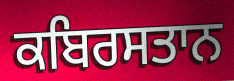
ਕਬਿਰਸਤਾਨ